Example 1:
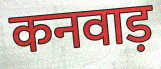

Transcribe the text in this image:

कनवाड़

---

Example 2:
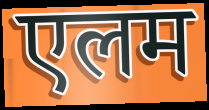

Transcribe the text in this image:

एलम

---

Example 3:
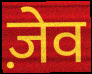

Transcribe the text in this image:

ज़ेव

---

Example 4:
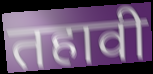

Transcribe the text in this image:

तहावी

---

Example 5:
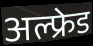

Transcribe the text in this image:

अल्फ्रेड